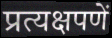
प्रत्यक्षपणें